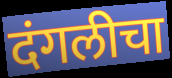
दंगलीचा